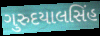
ગુરુદયાલસિંહ